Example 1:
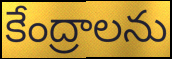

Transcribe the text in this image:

కేంద్రాలను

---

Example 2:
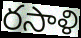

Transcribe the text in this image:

రసాళి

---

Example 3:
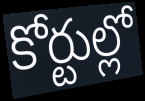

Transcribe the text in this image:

కోర్టుల్లో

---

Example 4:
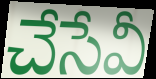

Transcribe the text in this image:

చేసేవీ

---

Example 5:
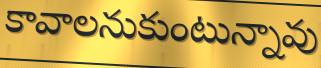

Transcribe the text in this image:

కావాలనుకుంటున్నావు